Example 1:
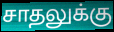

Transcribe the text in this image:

சாதலுக்கு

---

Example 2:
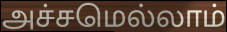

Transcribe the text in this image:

அச்சமெல்லாம்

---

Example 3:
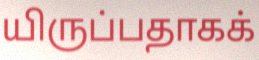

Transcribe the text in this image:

யிருப்பதாகக்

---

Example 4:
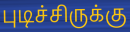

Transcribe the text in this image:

புடிச்சிருக்கு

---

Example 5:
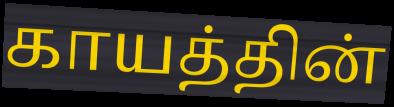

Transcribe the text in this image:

காயத்தின்